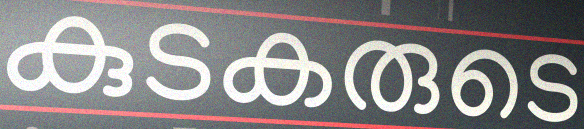
കുടകരുടെ